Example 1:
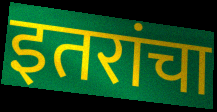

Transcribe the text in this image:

इतरांचा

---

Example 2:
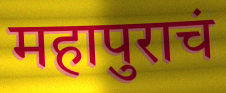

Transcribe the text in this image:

महापुराचं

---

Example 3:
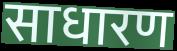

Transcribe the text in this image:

साधारण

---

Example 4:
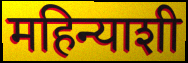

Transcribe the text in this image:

महिन्याशी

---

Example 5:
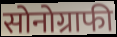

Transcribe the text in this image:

सोनोग्राफी